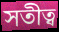
সতীত্ব